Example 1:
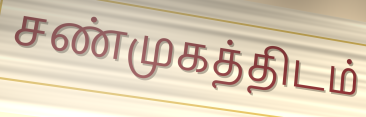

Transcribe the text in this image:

சண்முகத்திடம்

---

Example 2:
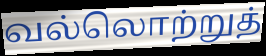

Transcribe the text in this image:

வல்லொற்றுத்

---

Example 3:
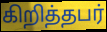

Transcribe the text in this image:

கிறித்தபர்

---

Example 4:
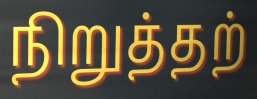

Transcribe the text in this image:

நிறுத்தற்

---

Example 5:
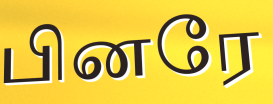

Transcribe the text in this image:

பினரே